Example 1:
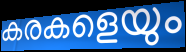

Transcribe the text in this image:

കരകളെയും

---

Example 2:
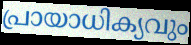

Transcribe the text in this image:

പ്രായാധിക്യവും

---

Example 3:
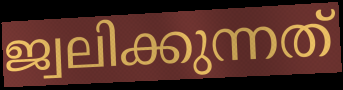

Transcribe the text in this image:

ജ്വലിക്കുന്നത്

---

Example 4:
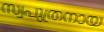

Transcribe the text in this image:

സ്വപുത്രനായ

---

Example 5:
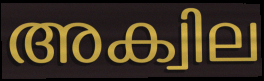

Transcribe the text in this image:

അക്വില